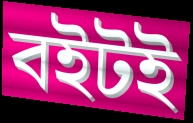
বইটই